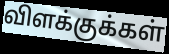
விளக்குக்கள்